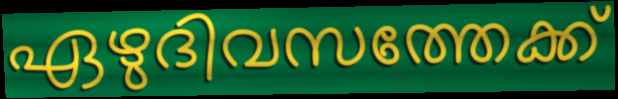
ഏഴുദിവസത്തേക്ക്